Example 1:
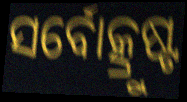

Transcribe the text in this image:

ସର୍ବୋତ୍କ୍ରୁଷ୍ଟ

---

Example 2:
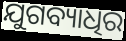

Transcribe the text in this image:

ଯୁଗବ୍ୟାଧିର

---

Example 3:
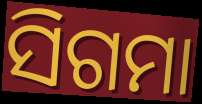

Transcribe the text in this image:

ସିଗମା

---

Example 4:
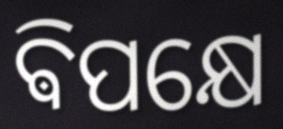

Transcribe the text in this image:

ଵିପକ୍ଷେ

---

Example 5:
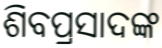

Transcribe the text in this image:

ଶିବପ୍ରସାଦଙ୍କ